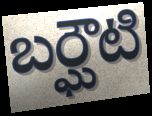
బర్ఘౌటి